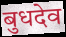
बुधदेव